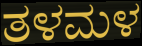
ತಳಮಳ